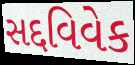
સદ્દવિવેક